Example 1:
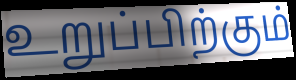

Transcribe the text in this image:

உறுப்பிற்கும்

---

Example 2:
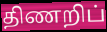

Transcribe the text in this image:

திணறிப்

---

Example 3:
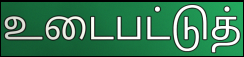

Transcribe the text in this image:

உடைபட்டுத்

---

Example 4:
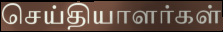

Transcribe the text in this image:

செய்தியாளர்கள்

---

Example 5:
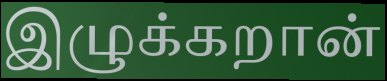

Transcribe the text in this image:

இழுக்கறான்